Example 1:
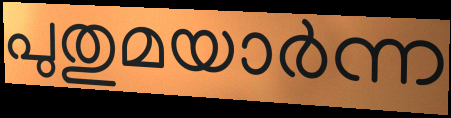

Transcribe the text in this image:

പുതുമയാർന്ന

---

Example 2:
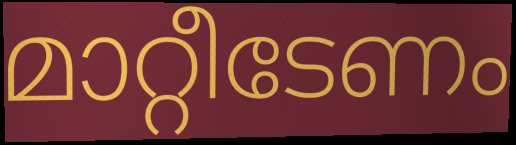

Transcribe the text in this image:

മാറ്റീടേണം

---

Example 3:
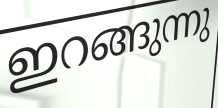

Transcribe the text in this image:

ഇറങ്ങുന്നു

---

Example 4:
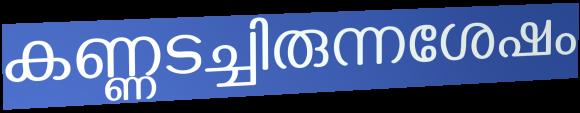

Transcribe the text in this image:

കണ്ണടച്ചിരുന്നശേഷം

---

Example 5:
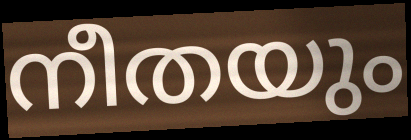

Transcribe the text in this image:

നീതയും